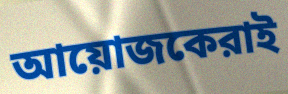
আয়োজকেরাই